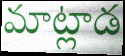
మాట్లాడ